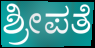
ಶ್ರೀಪತೆ